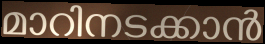
മാറിനടക്കാൻ